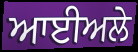
ਆਈਅਲੇ